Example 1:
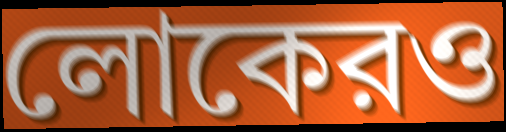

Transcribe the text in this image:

লোকেরও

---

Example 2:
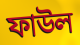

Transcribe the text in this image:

ফাউল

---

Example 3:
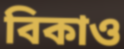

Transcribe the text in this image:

বিকাও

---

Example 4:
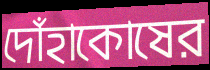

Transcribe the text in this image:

দোঁহাকোষের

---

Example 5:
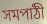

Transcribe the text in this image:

সমপাঠী